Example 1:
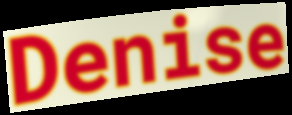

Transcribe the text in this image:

Denise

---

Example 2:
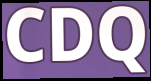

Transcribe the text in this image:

CDQ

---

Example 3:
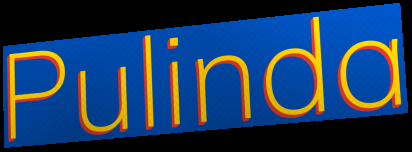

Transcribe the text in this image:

Pulinda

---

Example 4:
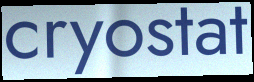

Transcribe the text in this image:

cryostat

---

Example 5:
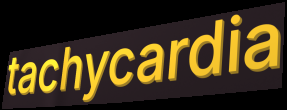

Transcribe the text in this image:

tachycardia